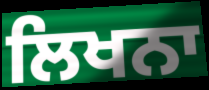
ਲਿਖਨਾ